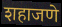
शहाजणे